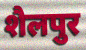
शैलपुर